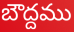
బౌద్దము